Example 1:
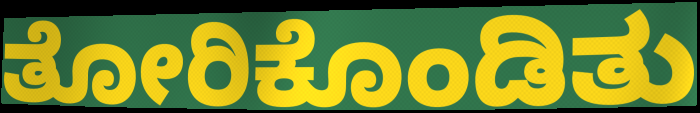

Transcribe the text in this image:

ತೋರಿಕೊಂಡಿತು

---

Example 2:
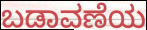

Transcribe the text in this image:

ಬಡಾವಣೆಯ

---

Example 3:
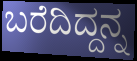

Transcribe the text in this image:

ಬರೆದಿದ್ದನ್ನ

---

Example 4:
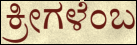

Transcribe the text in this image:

ಕ್ರೀಗಳೆಂಬ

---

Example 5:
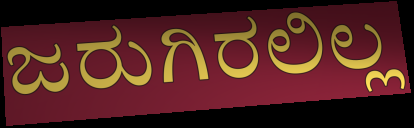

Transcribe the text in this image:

ಜರುಗಿರಲಿಲ್ಲ